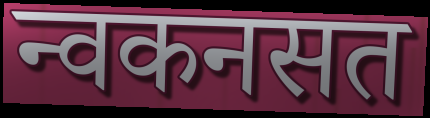
न्वकनसत